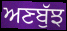
ਅਣਬੁੱਝ